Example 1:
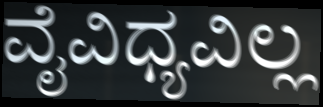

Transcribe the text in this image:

ವೈವಿಧ್ಯವಿಲ್ಲ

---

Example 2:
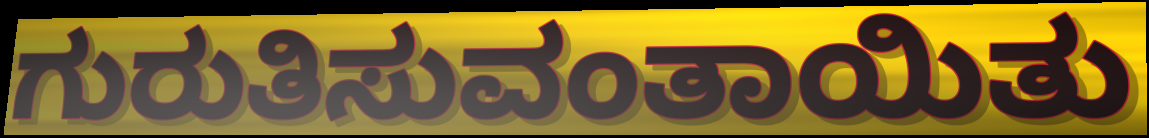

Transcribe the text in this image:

ಗುರುತಿಸುವಂತಾಯಿತು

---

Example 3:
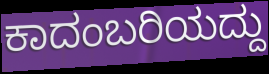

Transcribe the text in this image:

ಕಾದಂಬರಿಯದ್ದು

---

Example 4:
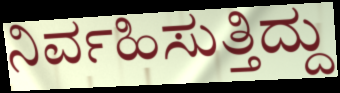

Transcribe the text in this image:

ನಿರ್ವಹಿಸುತ್ತಿದ್ದು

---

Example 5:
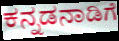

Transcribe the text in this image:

ಕನ್ನಡನಾಡಿಗೆ